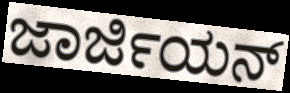
ಜಾರ್ಜಿಯನ್